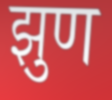
झुण